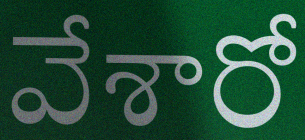
వేశారో